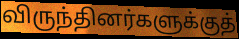
விருந்தினர்களுக்குத்